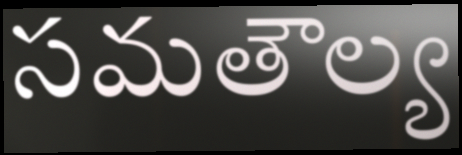
సమతౌల్య